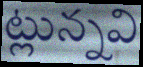
ట్లున్నవి